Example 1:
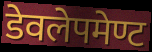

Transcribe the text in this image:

डेवलेपमेण्ट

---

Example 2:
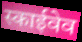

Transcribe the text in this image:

स्काईवेव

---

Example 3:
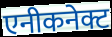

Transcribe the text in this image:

एनीकनेक्ट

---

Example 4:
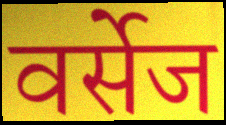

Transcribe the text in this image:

वर्सेज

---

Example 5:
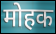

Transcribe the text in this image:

मोहक